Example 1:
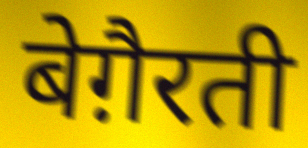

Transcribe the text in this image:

बेग़ैरती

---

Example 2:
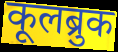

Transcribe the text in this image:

कूलब्रुक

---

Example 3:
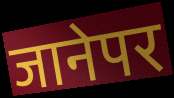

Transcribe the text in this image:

जानेपर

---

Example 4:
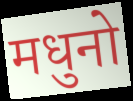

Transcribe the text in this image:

मधुनो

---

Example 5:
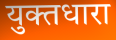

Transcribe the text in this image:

युक्तधारा